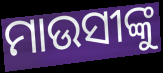
ମାଉସୀଙ୍କୁ